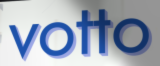
votto